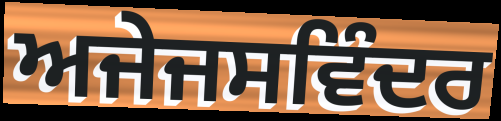
ਅਜੇਜਸਵਿੰਦਰ